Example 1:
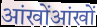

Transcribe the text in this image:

आंखोंआंखों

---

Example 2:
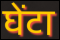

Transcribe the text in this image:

घेंटा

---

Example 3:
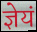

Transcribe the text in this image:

ज्ञेयं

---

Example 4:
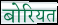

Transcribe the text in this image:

बोरियत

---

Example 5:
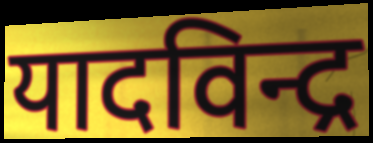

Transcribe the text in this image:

यादविन्द्र